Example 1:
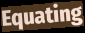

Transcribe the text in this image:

Equating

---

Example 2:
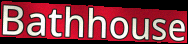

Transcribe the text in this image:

Bathhouse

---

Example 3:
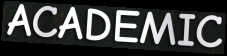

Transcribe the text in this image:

ACADEMIC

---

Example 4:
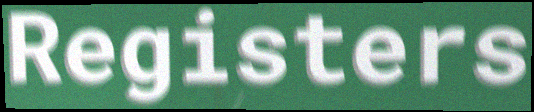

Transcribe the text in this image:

Registers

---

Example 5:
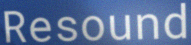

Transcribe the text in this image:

Resound